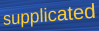
supplicated